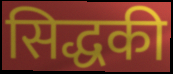
सिद्धकी